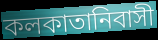
কলকাতানিবাসী